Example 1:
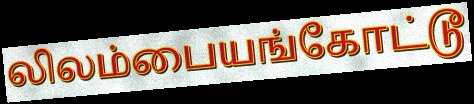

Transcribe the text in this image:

லிலம்பையங்கோட்டூ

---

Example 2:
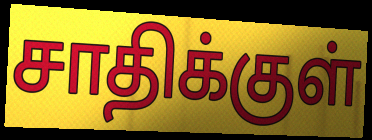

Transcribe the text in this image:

சாதிக்குள்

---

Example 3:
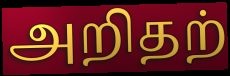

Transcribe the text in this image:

அறிதற்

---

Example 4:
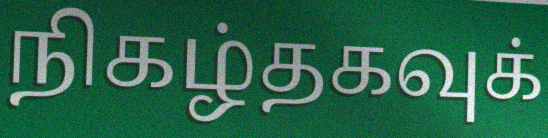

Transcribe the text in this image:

நிகழ்தகவுக்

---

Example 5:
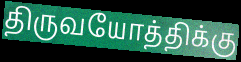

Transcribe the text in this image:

திருவயோத்திக்கு